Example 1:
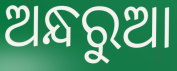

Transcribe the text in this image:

ଅନ୍ଧରୁଆ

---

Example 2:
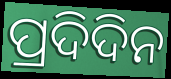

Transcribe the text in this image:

ପ୍ରଦିଦିନ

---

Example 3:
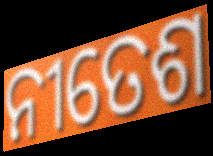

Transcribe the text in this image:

ନୀତେଶ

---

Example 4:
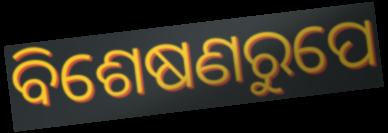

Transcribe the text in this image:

ବିଶେଷଣରୁପେ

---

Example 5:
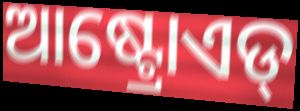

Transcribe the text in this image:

ଆଷ୍ଟ୍ରୋଏଡ୍